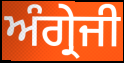
ਅੰਗ੍ਰੇਜੀ